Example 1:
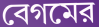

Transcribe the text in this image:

বেগমের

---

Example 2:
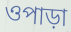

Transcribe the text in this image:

ওপাড়া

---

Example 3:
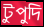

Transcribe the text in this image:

টুপুদি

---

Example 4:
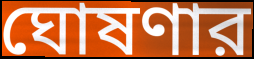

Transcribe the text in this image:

ঘোষণার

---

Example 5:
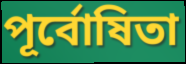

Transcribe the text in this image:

পূর্বোষিতা